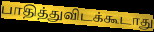
பாதித்துவிடக்கூடாது